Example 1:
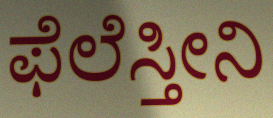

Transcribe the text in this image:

ಫೆಲೆಸ್ತೀನಿ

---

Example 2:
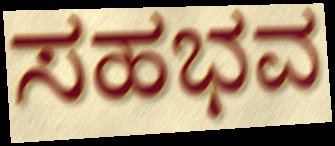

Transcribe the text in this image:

ಸಹಭವ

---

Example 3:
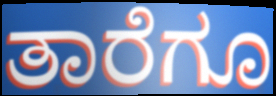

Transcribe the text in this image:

ತಾರೆಗೂ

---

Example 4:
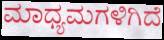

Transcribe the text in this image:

ಮಾಧ್ಯಮಗಳಿಗಿದೆ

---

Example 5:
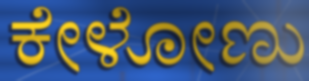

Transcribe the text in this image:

ಕೇಳೋಣು